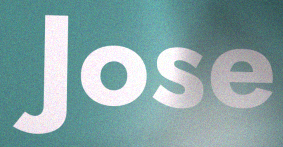
Jose